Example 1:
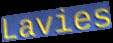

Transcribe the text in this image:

Lavies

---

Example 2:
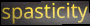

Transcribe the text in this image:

spasticity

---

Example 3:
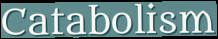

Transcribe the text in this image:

Catabolism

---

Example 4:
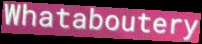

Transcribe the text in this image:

Whataboutery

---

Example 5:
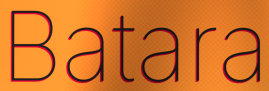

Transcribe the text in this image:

Batara